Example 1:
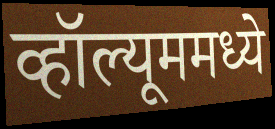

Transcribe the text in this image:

व्हॉल्यूममध्ये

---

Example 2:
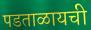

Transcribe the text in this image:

पडताळायची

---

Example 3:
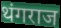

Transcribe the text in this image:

थंगराज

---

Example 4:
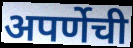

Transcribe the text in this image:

अपर्णेची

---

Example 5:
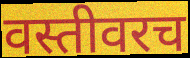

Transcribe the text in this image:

वस्तीवरच